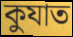
কুযাত